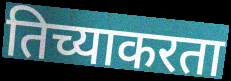
तिच्याकरता